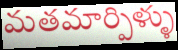
మతమార్పిళ్ళు